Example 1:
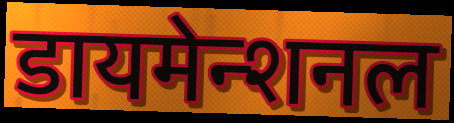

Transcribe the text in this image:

डायमेन्शनल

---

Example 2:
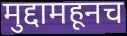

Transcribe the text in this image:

मुद्दामहूनच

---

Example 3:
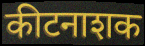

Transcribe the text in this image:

कीटनाशक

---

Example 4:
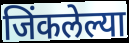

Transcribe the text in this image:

जिंकलेल्या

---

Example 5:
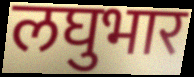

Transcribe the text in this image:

लघुभार